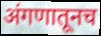
अंगणातूनच